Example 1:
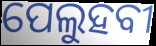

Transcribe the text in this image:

ପେଲୁହବୀ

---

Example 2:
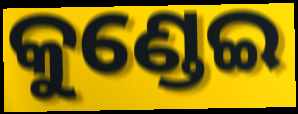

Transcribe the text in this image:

କୁଣ୍ଡେଇ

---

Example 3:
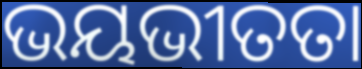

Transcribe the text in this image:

ଭୟଭୀତତା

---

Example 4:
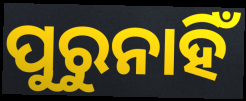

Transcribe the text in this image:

ପୁରୁନାହିଁ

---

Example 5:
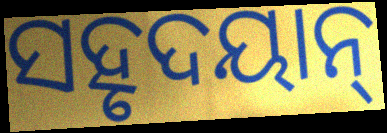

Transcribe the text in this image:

ସହୃଦୟାନ୍